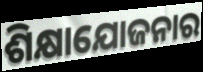
ଶିକ୍ଷାଯୋଜନାର